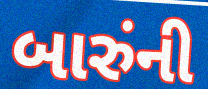
બારુંની